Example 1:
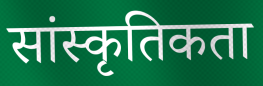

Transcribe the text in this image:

सांस्कृतिकता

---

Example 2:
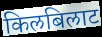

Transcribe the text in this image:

किलबिलाट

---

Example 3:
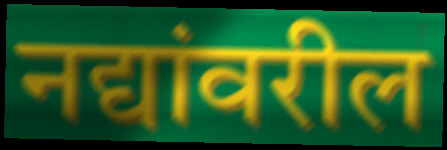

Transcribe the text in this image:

नद्यांवरील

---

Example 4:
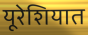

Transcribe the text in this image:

यूरेशियात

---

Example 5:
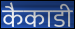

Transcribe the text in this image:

कैकाडी